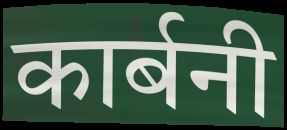
कार्बनी